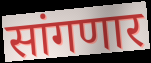
सांगणार